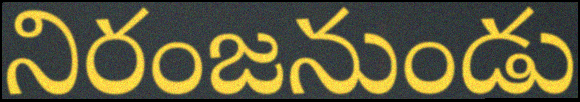
నిరంజనుండు